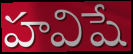
హవిషే